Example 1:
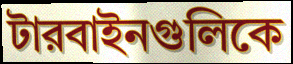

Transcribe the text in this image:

টারবাইনগুলিকে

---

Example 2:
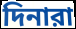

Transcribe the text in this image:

দিনারা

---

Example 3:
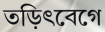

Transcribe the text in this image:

তড়িৎবেগে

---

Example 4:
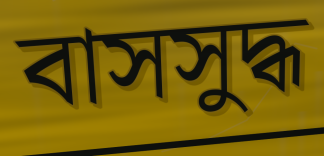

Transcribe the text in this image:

বাসসুদ্ধ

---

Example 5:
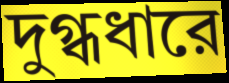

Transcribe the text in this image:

দুগ্ধধারে